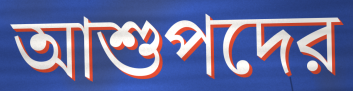
আশুপদের